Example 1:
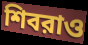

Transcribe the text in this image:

শিবরাও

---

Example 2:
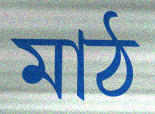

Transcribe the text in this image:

মাঠ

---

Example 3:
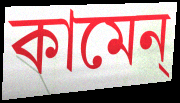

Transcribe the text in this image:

কামেন্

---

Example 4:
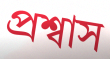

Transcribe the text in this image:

প্রশ্বাস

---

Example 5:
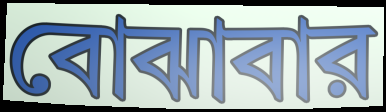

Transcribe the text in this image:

বোঝাবার